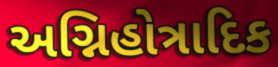
અગ્નિહોત્રાદિક